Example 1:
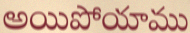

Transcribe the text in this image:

అయిపోయాము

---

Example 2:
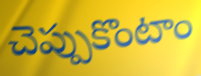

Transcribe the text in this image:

చెప్పుకొంటాం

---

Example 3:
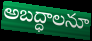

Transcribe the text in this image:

అబద్ధాలనూ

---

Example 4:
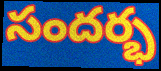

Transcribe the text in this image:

సందర్భ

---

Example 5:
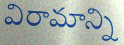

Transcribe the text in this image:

విరామాన్ని